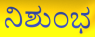
ನಿಶುಂಭ